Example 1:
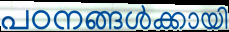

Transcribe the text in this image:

പഠനങ്ങൾക്കായി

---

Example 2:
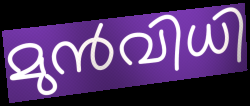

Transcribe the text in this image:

മുൻവിധി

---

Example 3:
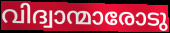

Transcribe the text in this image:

വിദ്വാന്മാരോടു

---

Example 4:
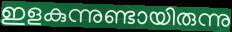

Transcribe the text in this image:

ഇളകുന്നുണ്ടായിരുന്നു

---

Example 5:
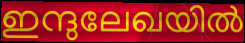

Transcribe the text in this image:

ഇന്ദുലേഖയിൽ